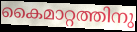
കൈമാറ്റത്തിനു